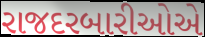
રાજદરબારીઓએ